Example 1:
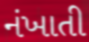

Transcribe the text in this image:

નંખાતી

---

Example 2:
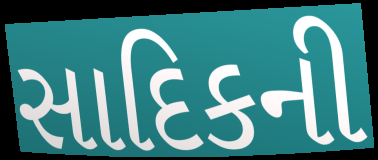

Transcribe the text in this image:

સાદિકની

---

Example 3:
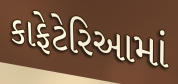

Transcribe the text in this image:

કાફેટેરિઆમાં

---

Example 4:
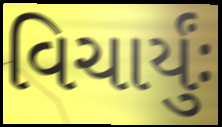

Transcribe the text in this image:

વિચાર્યુંઃ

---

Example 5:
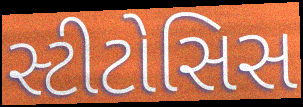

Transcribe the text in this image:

સ્ટીટોસિસ